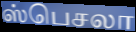
ஸ்பெசலா